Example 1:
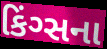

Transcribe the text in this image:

કિંગ્સના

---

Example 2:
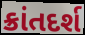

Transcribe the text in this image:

ક્રાંતદર્શ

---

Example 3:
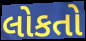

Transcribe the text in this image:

લોકતો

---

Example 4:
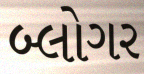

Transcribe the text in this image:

બ્લોગર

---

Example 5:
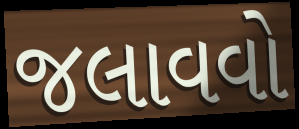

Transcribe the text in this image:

જલાવવો